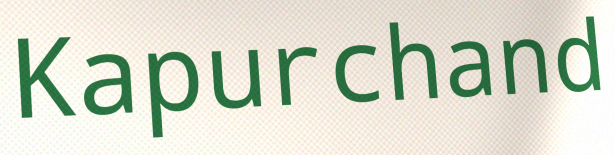
Kapurchand